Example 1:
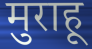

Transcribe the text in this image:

मुराहू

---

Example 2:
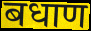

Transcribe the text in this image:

बधाण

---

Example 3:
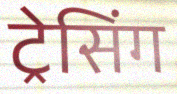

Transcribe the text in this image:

ट्रेसिंग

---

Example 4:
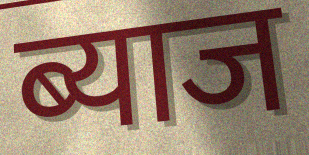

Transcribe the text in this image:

ब्‍याज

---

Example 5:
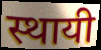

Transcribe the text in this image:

स्‍थायी